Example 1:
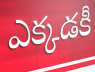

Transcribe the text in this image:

ఎక్కడకీ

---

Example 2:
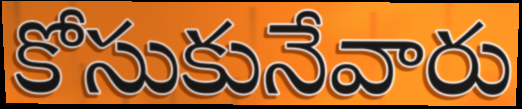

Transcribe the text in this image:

కోసుకునేవారు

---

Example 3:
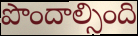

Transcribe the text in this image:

పొందాల్సింది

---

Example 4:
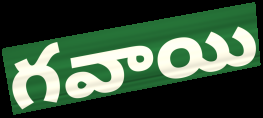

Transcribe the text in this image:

గవాయి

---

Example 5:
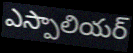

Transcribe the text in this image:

ఎస్పాలియర్